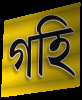
গহি